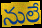
నులే